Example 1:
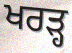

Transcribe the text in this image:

ਖਰੜ੍ਹ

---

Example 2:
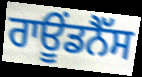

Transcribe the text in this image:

ਰਾਊਂਡਨੈੱਸ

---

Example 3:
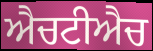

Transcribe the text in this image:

ਐਚਟੀਐਚ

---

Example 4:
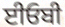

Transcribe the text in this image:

ਈਓਬੀ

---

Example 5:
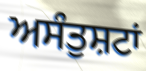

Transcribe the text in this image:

ਅਸੰਤੁਸ਼ਟਾਂ